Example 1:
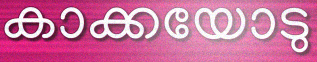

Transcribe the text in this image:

കാക്കയോടു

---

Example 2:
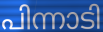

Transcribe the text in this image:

പിന്നാടി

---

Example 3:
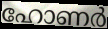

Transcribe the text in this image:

ഹോണർ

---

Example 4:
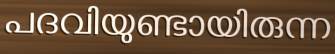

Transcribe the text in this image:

പദവിയുണ്ടായിരുന്ന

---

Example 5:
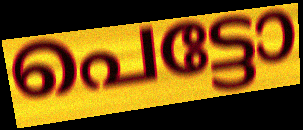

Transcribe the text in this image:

പെട്ടോ